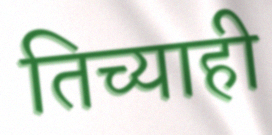
तिच्याही